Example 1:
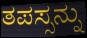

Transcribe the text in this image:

ತಪಸ್ಸನ್ನು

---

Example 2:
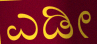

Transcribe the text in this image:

ಎಡೀ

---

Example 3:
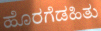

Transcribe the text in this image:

ಹೊರಗೆಡಹಿತು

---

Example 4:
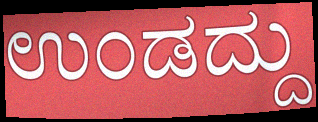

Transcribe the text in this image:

ಉಂಡದ್ದು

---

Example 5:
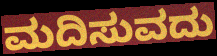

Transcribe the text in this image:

ಮದಿಸುವದು